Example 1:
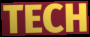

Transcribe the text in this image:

TECH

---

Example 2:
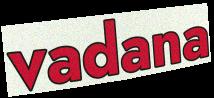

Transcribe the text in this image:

vadana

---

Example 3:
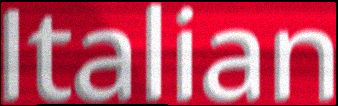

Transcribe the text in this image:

Italian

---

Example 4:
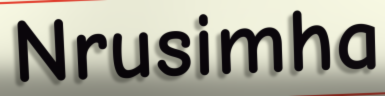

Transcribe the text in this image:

Nrusimha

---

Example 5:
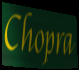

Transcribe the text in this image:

Chopra